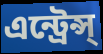
এন্ট্রেন্স্